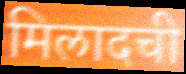
मिलादची